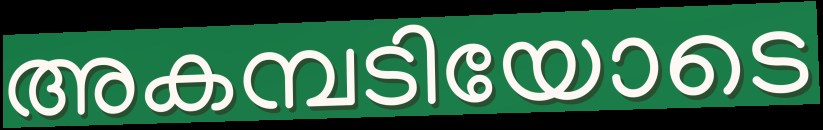
അകമ്പടിയോടെ